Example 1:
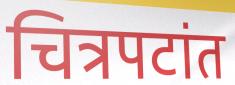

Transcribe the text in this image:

चित्रपटांत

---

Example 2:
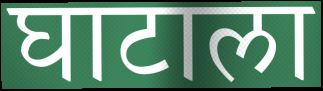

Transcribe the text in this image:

घाटाला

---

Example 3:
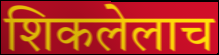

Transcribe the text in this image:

शिकलेलाच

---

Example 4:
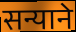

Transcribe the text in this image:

सन्याने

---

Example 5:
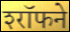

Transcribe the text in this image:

श्रॉफने